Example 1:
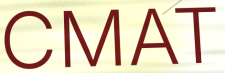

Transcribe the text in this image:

CMAT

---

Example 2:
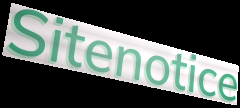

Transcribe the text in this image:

Sitenotice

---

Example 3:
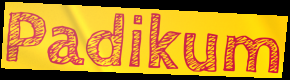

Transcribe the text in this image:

Padikum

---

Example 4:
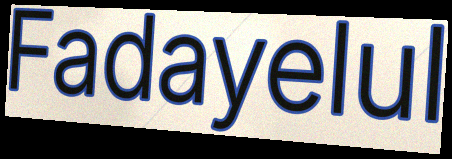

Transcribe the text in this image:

Fadayelul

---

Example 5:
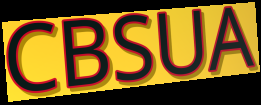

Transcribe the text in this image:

CBSUA